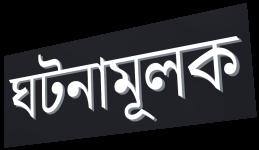
ঘটনামূলক